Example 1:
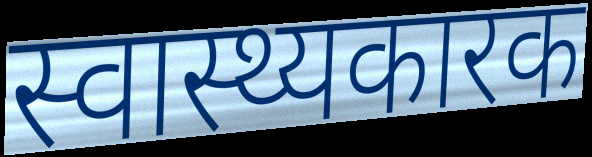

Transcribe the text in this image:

स्वास्थ्यकारक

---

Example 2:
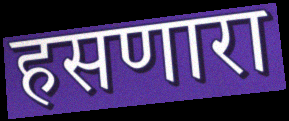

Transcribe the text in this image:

हसणारा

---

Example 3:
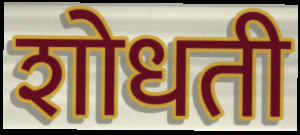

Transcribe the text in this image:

शोधती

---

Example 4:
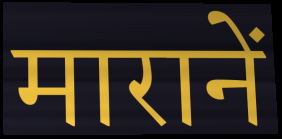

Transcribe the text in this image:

मारानें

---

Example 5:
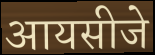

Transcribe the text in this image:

आयसीजे